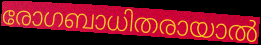
രോഗബാധിതരായാൽ